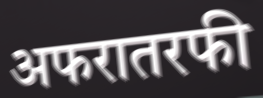
अफरातरफी